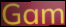
Gam